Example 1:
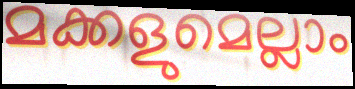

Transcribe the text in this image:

മക്കളുമെല്ലാം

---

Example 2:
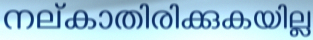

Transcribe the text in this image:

നല്‌കാതിരിക്കുകയില്ല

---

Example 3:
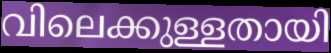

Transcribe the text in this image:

വിലെക്കുള്ളതായി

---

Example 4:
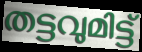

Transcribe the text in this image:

തട്ടവുമിട്ട്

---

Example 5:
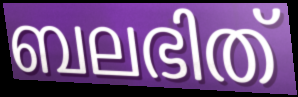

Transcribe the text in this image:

ബലഭിത്